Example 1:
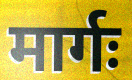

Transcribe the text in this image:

मार्गः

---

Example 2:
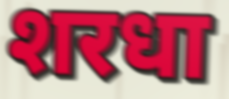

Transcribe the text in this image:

शरधा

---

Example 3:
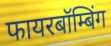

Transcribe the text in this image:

फायरबॉम्बिंग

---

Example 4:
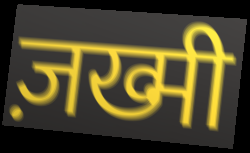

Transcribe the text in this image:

ज़ख्मी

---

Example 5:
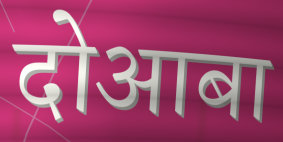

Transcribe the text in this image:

दोआबा